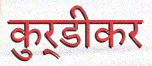
कुर्डीकर